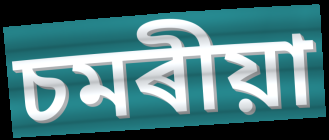
চমৰীয়া